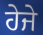
ਹੇਜੇ